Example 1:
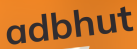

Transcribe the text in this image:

adbhut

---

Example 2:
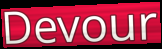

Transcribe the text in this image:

Devour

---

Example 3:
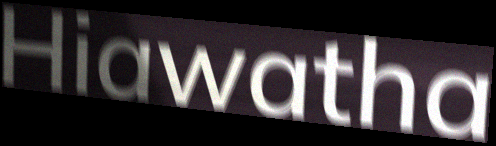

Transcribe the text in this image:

Hiawatha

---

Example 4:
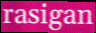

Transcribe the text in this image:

rasigan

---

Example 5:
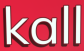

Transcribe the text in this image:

kall